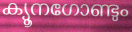
ക്യൂനഗോണ്ടും